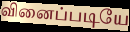
வினைப்படியே